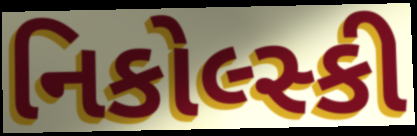
નિકોલ્સ્કી